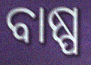
ବାଷ୍ପ